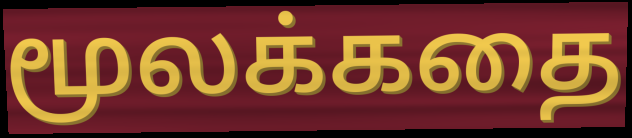
மூலக்கதை